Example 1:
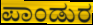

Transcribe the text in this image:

ಪಾಂಡುರ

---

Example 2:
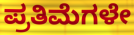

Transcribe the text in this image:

ಪ್ರತಿಮೆಗಳೇ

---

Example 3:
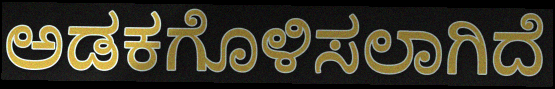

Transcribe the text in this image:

ಅಡಕಗೊಳಿಸಲಾಗಿದೆ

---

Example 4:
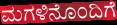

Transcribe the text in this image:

ಮಗಳಿನೊಂದಿಗೆ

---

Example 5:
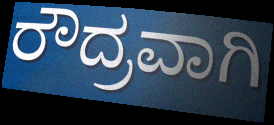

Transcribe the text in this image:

ರೌದ್ರವಾಗಿ